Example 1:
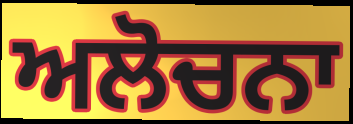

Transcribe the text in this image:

ਅਲੋਚਨਾ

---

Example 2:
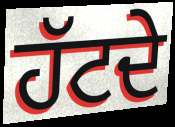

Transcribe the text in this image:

ਹੱਟਦੇ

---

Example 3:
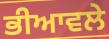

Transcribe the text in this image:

ਭੀਆਵਲੇ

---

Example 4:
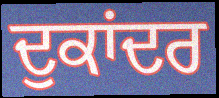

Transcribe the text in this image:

ਦੁਕਾਂਦਰ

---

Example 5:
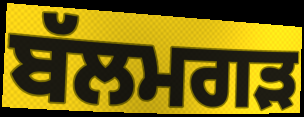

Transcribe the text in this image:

ਬੱਲਮਗੜ